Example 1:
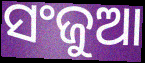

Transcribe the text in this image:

ସଂଜୁଆ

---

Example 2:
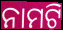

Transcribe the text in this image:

ନାମଟି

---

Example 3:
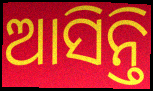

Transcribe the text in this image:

ଆସିନ୍ତି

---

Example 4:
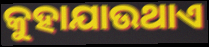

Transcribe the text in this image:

କୁହାଯାଉଥାଏ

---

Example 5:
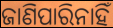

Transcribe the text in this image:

ଜାଣିପାରିନାହିଁ